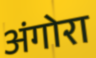
अंगोरा